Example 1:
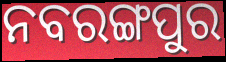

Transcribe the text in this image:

ନବରଙ୍ଗପୁର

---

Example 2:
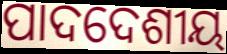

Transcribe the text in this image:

ପାଦଦେଶୀୟ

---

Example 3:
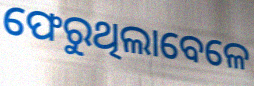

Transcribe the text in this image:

ଫେରୁଥିଲାବେଳେ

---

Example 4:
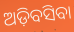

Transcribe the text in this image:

ଅଡ଼ିବସିବା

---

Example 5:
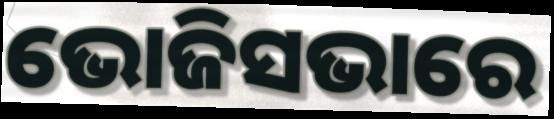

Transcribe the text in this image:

ଭୋଜିସଭାରେ